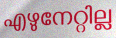
എഴുനേറ്റില്ല